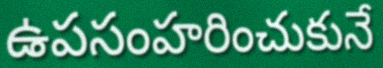
ఉపసంహరించుకునే